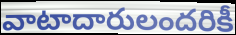
వాటాదారులందరికీ